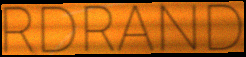
RDRAND